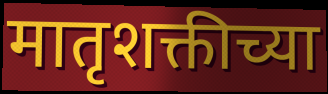
मातृशक्तीच्या